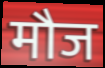
मौज